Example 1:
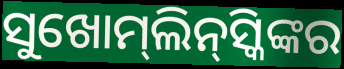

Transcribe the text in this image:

ସୁଖୋମ୍‌ଲିନ୍‌ସ୍କିଙ୍କର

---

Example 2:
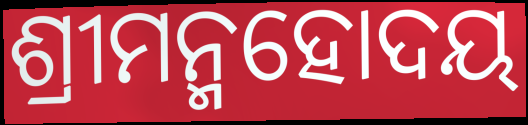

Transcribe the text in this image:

ଶ୍ରୀମନ୍ମହୋଦୟ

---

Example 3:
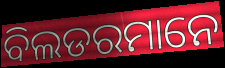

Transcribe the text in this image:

ବିଲଡରମାନେ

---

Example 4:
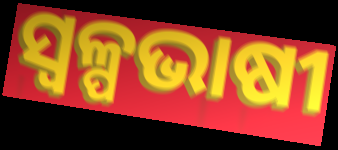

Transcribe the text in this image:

ସ୍ୱଳ୍ପଭାଷୀ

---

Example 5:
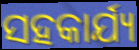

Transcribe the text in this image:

ସହକାର୍ଯ୍ୟ